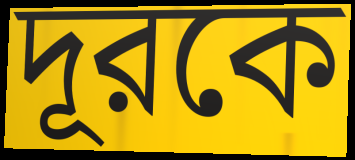
দূরকে